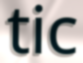
tic